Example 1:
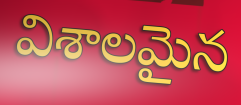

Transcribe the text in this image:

విశాలమైన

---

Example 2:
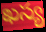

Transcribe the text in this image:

ఖస్య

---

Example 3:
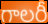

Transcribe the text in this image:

గాలరీ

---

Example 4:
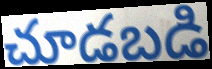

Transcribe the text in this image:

చూడబడి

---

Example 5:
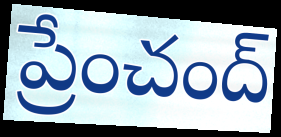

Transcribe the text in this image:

ప్రేంచంద్